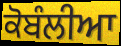
ਕੋਬੰਲੀਆ